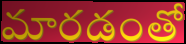
మారడంతో